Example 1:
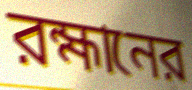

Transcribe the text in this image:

রহ্মানের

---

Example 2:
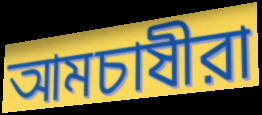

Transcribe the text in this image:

আমচাষীরা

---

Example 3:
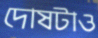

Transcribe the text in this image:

দোষটাও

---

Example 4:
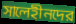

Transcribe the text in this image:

সালেহীনদের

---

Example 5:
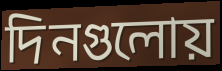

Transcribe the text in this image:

দিনগুলোয়